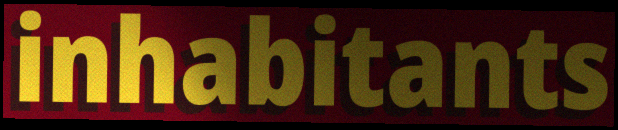
inhabitants